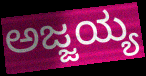
ಅಜ್ಜಯ್ಯ